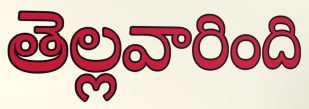
తెల్లవారింది